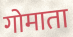
गोमाता